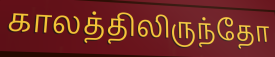
காலத்திலிருந்தோ